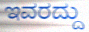
ಇವರದ್ದು